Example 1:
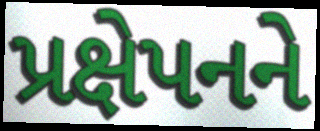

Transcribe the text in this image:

પ્રક્ષેપનને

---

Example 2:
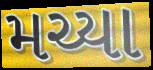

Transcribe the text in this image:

મચ્યા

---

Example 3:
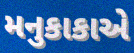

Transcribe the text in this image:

મનુકાકાએ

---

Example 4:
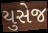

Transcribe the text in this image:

યુસેજ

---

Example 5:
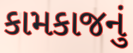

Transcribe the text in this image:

કામકાજનું